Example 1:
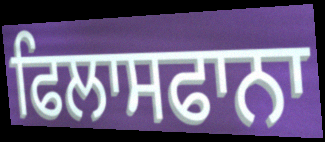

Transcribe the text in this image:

ਫਿਲਾਸਫਾਨਾ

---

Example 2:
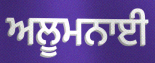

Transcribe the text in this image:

ਅਲੂਮਨਾਈ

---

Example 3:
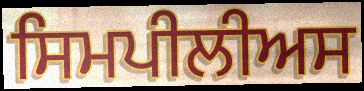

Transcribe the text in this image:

ਸਿਮਪੀਲੀਅਸ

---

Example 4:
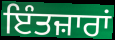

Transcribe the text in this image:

ਇੰਤਜ਼ਾਰਾਂ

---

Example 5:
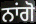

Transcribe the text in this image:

ਨਾਂਗੋ